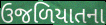
ઉજળિયાતના